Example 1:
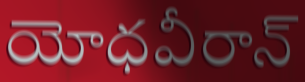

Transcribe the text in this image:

యోధవీరాన్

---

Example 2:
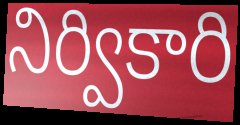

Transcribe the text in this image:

నిర్వికారి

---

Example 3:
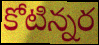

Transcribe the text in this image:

కోటిన్నర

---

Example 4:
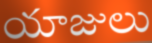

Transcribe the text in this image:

యాజులు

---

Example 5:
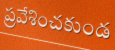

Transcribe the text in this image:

ప్రవేశించకుండ